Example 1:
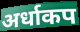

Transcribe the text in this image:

अर्धाकप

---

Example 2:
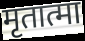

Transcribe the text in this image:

मृतात्मा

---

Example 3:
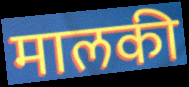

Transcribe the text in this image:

मालकी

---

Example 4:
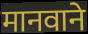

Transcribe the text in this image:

मानवाने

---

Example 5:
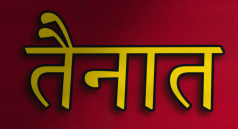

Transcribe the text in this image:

तैनात